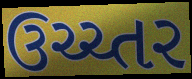
ઉચ્ચ્તર